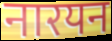
नारयन